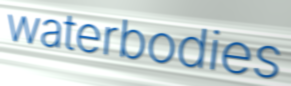
waterbodies